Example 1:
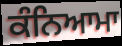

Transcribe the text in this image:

ਕੰਨਿਆਮਾ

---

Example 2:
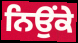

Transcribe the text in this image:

ਨਿਉਂਕੇ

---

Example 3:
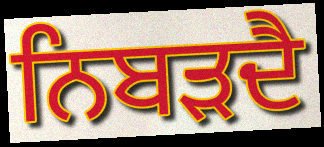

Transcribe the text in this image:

ਨਿਬੜਦੈ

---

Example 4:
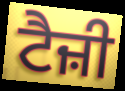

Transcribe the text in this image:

ਟੈਜ਼ੀ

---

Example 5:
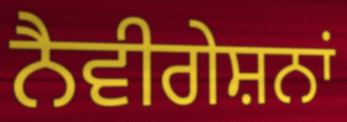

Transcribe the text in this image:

ਨੈਵੀਗੇਸ਼ਨਾਂ